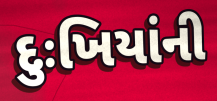
દુઃખિયાંની